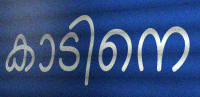
കാടിനെ